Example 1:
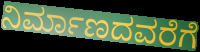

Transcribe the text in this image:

ನಿರ್ಮಾಣದವರೆಗೆ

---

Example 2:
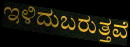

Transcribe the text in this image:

ಇಳಿದುಬರುತ್ತವೆ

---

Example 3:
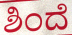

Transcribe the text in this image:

ಶಿಂದೆ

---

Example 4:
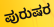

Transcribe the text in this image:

ಪುರುಷರ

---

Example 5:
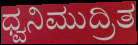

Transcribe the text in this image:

ಧ್ವನಿಮುದ್ರಿತ